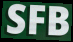
SFB